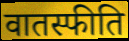
वातस्फीति